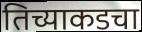
तिच्याकडचा